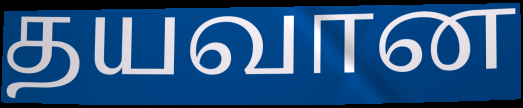
தயவான